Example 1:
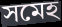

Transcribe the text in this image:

সমেহ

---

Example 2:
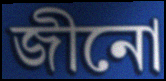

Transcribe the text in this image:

জীনো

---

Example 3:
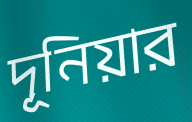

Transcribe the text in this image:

দূনিয়ার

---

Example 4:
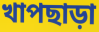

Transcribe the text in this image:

খাপছাড়া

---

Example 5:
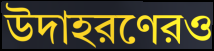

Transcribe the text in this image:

উদাহরণেরও